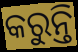
କରୁନ୍ତି